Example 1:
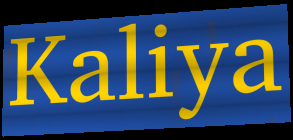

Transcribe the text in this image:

Kaliya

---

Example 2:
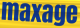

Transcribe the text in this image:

maxage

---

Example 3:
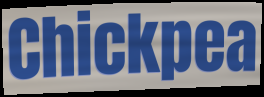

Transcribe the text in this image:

Chickpea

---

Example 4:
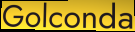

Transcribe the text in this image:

Golconda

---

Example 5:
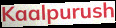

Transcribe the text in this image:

Kaalpurush